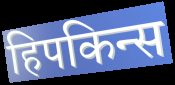
हिपकिन्स